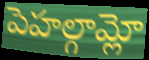
పెహల్గామ్లో